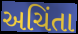
અચિંતા